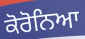
ਕੋਰੋਨਿਆ